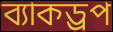
ব্যাকড্রপ